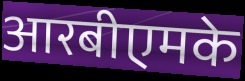
आरबीएमके